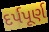
દર્પપૂર્ણ